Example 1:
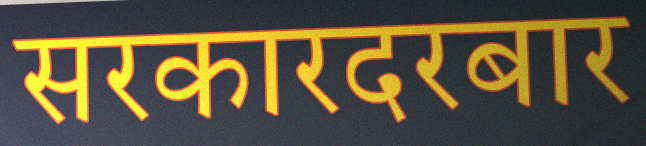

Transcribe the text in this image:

सरकारदरबार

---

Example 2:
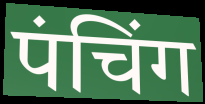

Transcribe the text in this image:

पंचिंग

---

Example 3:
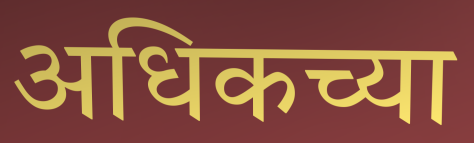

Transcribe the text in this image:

अधिकच्या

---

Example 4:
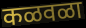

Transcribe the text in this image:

कळवळा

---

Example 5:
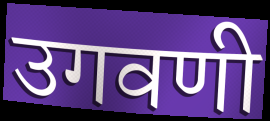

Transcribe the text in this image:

उगवणी